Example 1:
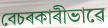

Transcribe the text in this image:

বেচৰকাৰীভাৱে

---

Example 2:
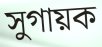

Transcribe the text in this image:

সুগায়ক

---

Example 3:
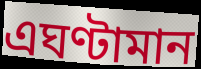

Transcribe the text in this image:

এঘণ্টামান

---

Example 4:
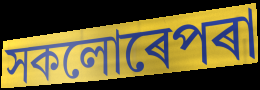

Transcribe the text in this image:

সকলোৰেপৰা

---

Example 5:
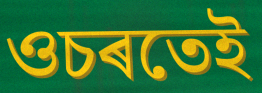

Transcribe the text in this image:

ওচৰতেই